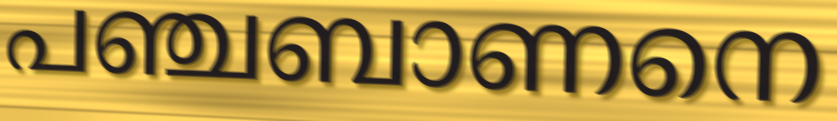
പഞ്ചബാണനെ